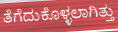
ತೆಗೆದುಕೊಳ್ಳಲಾಗಿತ್ತು